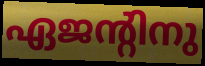
ഏജന്റിനു